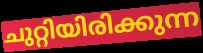
ചുറ്റിയിരിക്കുന്ന